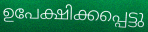
ഉപേക്ഷിക്കപ്പെട്ടു